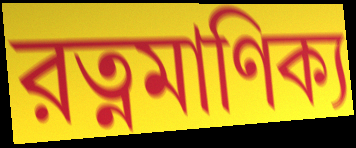
রত্নমাণিক্য